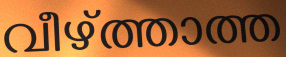
വീഴ്ത്താത്ത